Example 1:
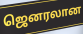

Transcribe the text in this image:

ஜெனரலான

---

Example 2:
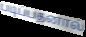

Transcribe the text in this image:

படிப்பதனால்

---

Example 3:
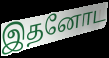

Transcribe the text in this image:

இதனோட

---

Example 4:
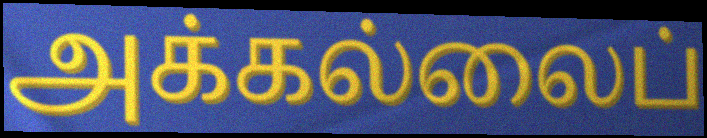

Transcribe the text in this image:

அக்கல்லைப்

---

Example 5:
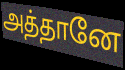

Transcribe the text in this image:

அத்தானே